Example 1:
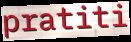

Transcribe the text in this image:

pratiti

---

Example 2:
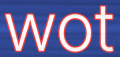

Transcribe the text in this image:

wot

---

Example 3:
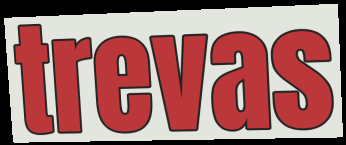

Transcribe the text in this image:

trevas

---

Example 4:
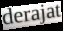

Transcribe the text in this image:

derajat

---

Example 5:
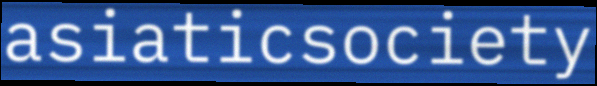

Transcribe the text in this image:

asiaticsociety